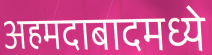
अहमदाबादमध्ये